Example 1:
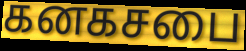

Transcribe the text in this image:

கனகசபை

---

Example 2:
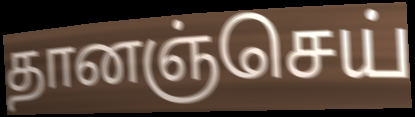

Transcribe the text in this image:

தானஞ்செய்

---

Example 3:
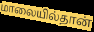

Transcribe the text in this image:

மாலையில்தான்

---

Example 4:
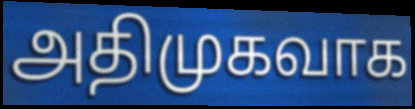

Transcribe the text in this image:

அதிமுகவாக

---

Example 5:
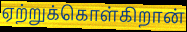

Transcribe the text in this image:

ஏற்றுக்கொள்கிறான்